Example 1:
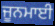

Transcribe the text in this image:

ਜੂਨਮਾਈ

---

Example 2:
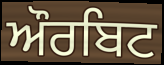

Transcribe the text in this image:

ਔਰਬਿਟ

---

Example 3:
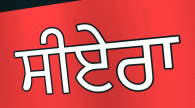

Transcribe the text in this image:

ਸੀਏਰਾ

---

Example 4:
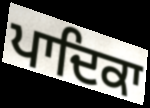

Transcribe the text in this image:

ਪਾਦਿਕਾ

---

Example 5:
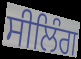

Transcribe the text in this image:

ਸੀਲਿੰਗ